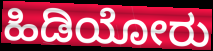
ಹಿಡಿಯೋರು